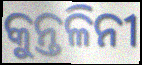
କୁନ୍ତଳିନୀ